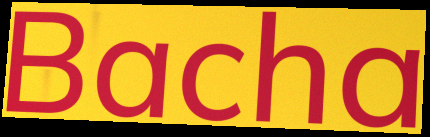
Bacha